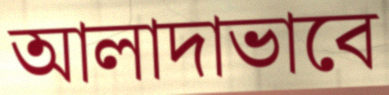
আলাদাভাবে